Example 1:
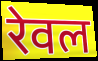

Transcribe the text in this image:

रेवल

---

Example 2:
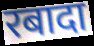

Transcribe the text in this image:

रबादा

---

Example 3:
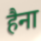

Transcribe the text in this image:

हैना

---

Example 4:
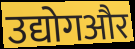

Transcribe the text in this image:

उद्योगऔर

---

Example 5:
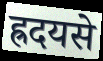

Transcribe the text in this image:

ह्रदयसे